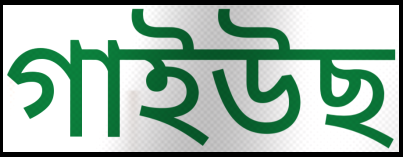
গাইউছ